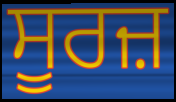
ਸੂਰਜ਼